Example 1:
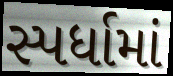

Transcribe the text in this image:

સ્પર્ધામાં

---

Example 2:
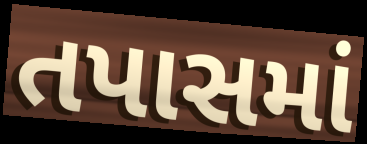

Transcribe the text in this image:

તપાસમાં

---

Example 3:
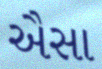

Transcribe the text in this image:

ઐસા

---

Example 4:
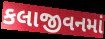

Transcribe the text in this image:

કલાજીવનમાં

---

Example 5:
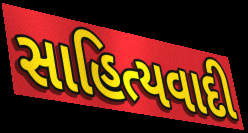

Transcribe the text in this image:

સાહિત્યવાદી